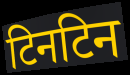
टिनटिन